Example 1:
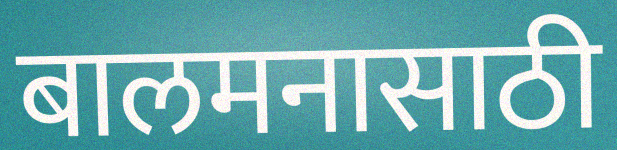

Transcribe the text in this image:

बालमनासाठी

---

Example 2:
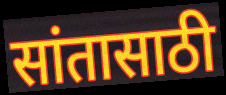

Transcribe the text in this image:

सांतासाठी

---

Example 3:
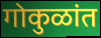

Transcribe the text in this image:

गोकुळांत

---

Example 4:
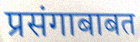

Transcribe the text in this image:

प्रसंगाबाबत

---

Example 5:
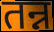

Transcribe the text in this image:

तन्न